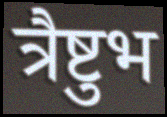
त्रैष्टुभ